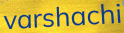
varshachi